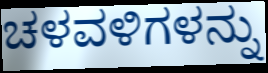
ಚಳವಳಿಗಳನ್ನು